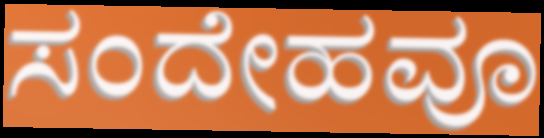
ಸಂದೇಹವೂ